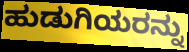
ಹುಡುಗಿಯರನ್ನು